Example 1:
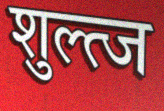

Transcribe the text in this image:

शुल्त्ज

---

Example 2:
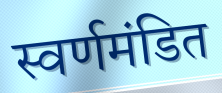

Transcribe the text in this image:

स्वर्णमंडित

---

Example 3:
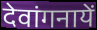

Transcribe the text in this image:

देवांगनायें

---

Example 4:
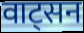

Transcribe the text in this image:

वाट्सन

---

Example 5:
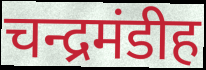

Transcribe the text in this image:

चन्द्रमंडीह